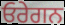
ਓਰੇਗਨ